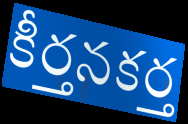
కీర్తనకర్త